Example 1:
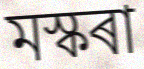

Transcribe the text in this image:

মস্কৰা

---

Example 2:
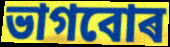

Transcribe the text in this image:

ভাগবোৰ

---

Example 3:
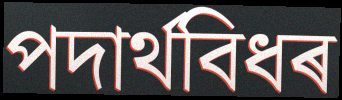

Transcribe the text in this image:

পদাৰ্থবিধৰ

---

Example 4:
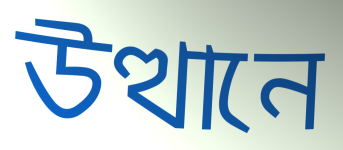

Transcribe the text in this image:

উত্থানে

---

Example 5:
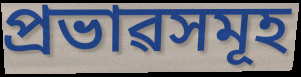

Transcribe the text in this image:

প্ৰভাৱসমূহ